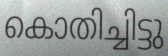
കൊതിച്ചിട്ടു